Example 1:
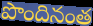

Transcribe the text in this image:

పొందినంత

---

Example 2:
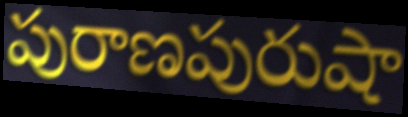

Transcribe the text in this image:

పురాణపురుషా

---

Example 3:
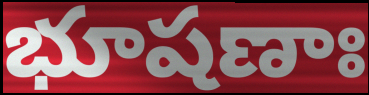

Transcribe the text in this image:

భూషణాః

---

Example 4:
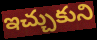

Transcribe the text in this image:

ఇచ్చుకుని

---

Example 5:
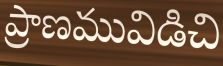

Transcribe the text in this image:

ప్రాణమువిడిచి